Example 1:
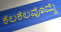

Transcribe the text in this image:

ಕೆಲಕೆಲವೊಮ್ಮೆ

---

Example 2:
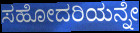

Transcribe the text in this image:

ಸಹೋದರಿಯನ್ನೇ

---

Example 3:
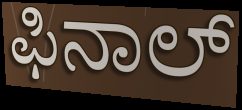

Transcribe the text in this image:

ಫಿನಾಲ್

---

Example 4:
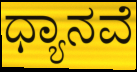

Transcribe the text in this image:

ಧ್ಯಾನವೆ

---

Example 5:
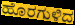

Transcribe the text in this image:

ಹೊರಗುಳಿದ